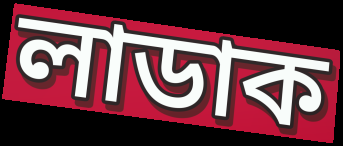
লাডাক